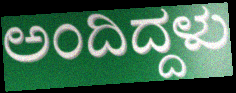
ಅಂದಿದ್ದಳು